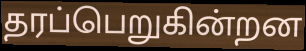
தரப்பெறுகின்றன